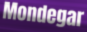
Mondegar